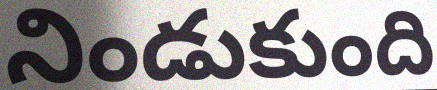
నిండుకుంది